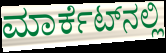
ಮಾರ್ಕೆಟ್‍ನಲ್ಲಿ